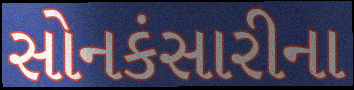
સોનકંસારીના